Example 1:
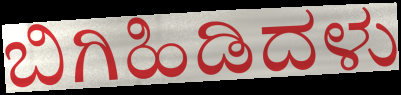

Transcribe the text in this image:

ಬಿಗಿಹಿಡಿದಳು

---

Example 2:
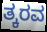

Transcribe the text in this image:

ತ್ಕರವ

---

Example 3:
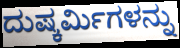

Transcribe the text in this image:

ದುಷ್ಕರ್ಮಿಗಳನ್ನು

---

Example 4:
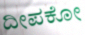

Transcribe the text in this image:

ದೀಪಕೋ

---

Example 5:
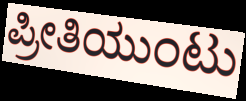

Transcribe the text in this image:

ಪ್ರೀತಿಯುಂಟು